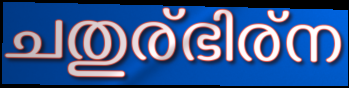
ചതുര്ഭിര്ന